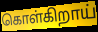
கொள்கிறாய்